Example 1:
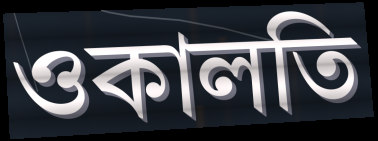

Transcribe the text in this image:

ওকালতি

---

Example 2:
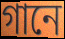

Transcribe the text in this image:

গানে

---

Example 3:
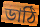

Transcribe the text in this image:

ডাঠি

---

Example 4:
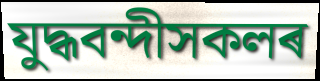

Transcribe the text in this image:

যুদ্ধবন্দীসকলৰ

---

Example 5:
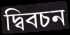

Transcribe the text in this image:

দ্বিবচন